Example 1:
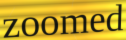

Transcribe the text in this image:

zoomed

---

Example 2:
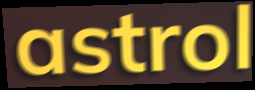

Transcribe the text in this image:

astrol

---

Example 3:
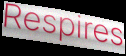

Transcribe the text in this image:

Respires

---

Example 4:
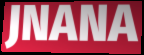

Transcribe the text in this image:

JNANA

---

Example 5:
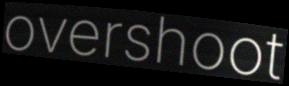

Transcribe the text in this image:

overshoot